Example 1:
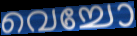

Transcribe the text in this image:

വെച്ചോ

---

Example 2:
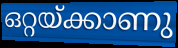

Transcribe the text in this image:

ഒറ്റയ്ക്കാണു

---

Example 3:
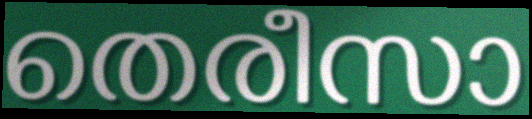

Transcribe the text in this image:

തെരീസാ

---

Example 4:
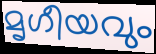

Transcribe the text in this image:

മൃഗീയവും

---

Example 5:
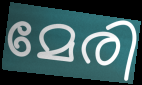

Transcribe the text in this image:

മേരി